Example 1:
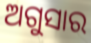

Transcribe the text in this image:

ଅଗୁସାର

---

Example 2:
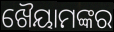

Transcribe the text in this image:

ଖୈୟାମଙ୍କର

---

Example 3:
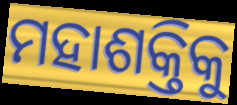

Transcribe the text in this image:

ମହାଶକ୍ତିକୁ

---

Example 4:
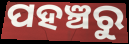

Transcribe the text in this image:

ପହଞ୍ଚରୁ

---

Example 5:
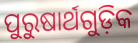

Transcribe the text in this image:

ପୁରୁଷାର୍ଥଗୁଡ଼ିକ